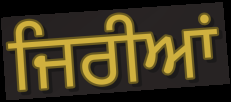
ਜਿਰੀਆਂ